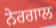
ਨੇਰਗਾਲ